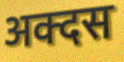
अक्दस